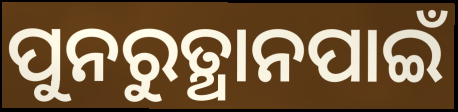
ପୁନରୁତ୍ଥାନପାଇଁ